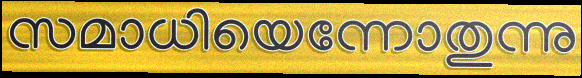
സമാധിയെന്നോതുന്നു